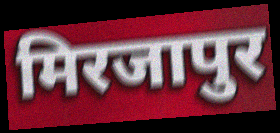
मिरजापुर